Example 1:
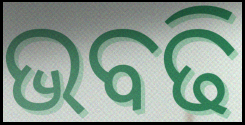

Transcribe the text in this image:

ଭବଢି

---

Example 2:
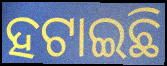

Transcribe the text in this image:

ହଟାଇଛି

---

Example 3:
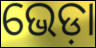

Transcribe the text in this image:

ଭେଡ଼ା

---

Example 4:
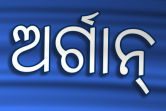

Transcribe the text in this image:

ଅର୍ଗାନ୍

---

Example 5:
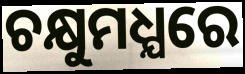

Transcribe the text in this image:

ଚକ୍ଷୁମଧ୍ଯରେ